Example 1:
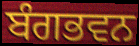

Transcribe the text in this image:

ਬੰਗਭਵਨ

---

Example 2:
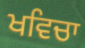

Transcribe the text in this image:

ਖਵਿਚਾ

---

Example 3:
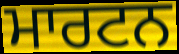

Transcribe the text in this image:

ਮਾਰਟਨ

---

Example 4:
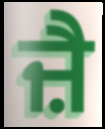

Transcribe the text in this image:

ਜ਼ੈ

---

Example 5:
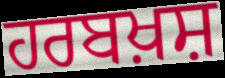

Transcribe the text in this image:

ਹਰਬਖ਼ਸ਼